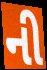
ની